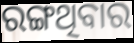
ରଙ୍ଗଥିବାର